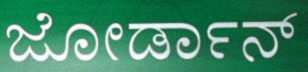
ಜೋರ್ಡಾನ್